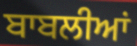
ਬਾਬਲੀਆਂ